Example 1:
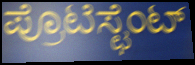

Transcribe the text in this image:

ಪ್ರೊಟೆಸ್ಟೆಂಟ್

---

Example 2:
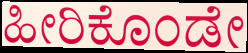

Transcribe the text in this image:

ಹೀರಿಕೊಂಡೇ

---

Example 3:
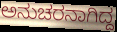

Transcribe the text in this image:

ಅನುಚರನಾಗಿದ್ದ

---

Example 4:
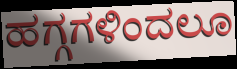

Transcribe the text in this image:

ಹಗ್ಗಗಳಿಂದಲೂ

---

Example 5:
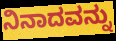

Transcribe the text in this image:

ನಿನಾದವನ್ನು